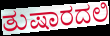
ತುಷಾರದಲಿ